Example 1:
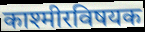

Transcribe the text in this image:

काश्मीरविषयक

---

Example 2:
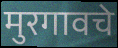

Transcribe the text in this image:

मुरगावचे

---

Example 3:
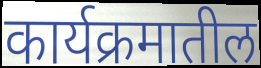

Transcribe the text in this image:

कार्यक्रमातील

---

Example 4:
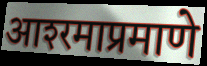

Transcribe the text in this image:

आश्रमाप्रमाणे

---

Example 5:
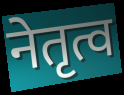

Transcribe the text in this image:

नेतृत्व